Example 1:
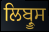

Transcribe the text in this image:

ਲਿਬ੍ਰੂਸ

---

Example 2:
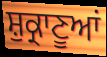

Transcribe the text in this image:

ਸ਼ੁਕ੍ਰਾਣੂਆਂ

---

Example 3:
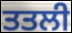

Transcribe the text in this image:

ਤਤਲੀ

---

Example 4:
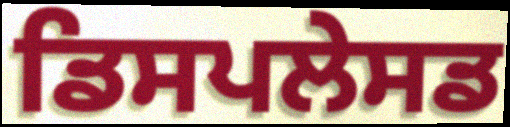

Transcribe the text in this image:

ਡਿਸਪਲੇਸਡ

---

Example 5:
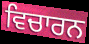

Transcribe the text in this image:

ਵਿਚਾਰਨ